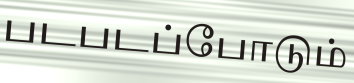
படபடப்போடும்